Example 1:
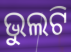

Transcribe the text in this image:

ଭୁଲଟି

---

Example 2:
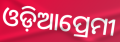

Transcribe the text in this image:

ଓଡ଼ିଆପ୍ରେମୀ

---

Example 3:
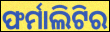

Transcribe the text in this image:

ଫର୍ମାଲିଟିର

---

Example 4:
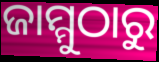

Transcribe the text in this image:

ଜାମ୍ମୁଠାରୁ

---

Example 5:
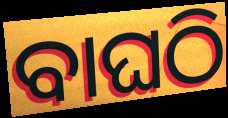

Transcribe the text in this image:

ବାଘଠି